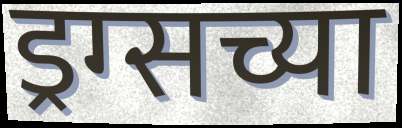
ड्रग्सच्या